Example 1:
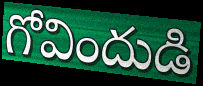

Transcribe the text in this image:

గోవిందుడి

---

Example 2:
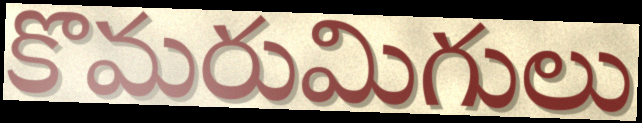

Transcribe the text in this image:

కొమరుమిగులు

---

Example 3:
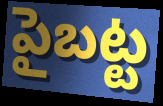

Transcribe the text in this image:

పైబట్ట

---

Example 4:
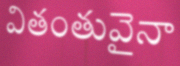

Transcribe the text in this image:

వితంతువైనా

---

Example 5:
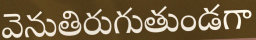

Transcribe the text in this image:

వెనుతిరుగుతుండగా